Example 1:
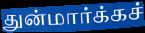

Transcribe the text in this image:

துன்மார்க்கச்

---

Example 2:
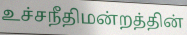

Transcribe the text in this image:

உச்சநீதிமன்றத்தின்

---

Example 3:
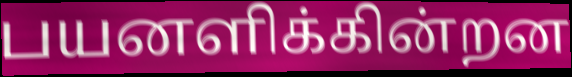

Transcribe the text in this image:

பயனளிக்கின்றன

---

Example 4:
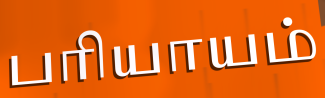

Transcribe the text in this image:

பரியாயம்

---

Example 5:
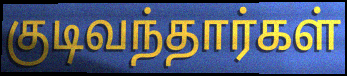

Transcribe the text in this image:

குடிவந்தார்கள்